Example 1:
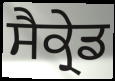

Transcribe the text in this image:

ਸੈਕ੍ਰੇਡ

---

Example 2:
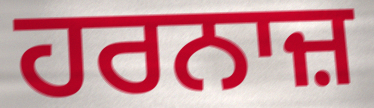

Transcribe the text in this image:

ਹਰਨਾਜ਼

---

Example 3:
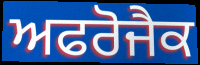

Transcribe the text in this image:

ਅਫਰੋਜੈਕ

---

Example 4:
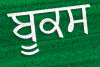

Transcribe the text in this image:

ਬੂਕਸ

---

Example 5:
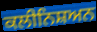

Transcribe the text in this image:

ਕਲੀਨਿਸ਼ਅਨ